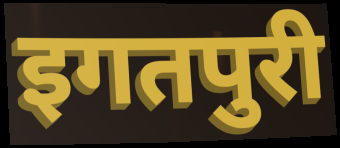
इगतपुरी